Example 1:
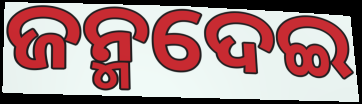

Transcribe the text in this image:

ଜନ୍ମଦେଇ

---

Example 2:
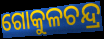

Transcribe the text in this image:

ଗୋକୁଳଚନ୍ଦ୍ର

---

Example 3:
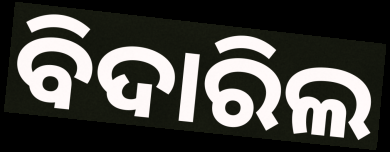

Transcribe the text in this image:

ବିଦାରିଲ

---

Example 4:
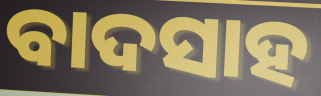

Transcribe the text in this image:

ବାଦସାହ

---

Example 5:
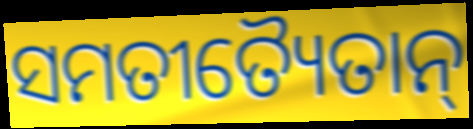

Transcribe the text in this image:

ସମତୀତ୍ୟୈତାନ୍